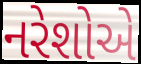
નરેશોએ